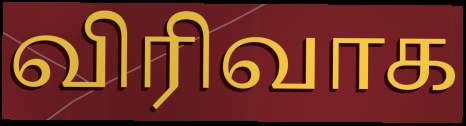
விரிவாக